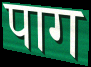
पाग